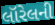
લૉરેલની